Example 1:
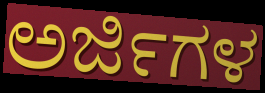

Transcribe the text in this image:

ಅರ್ಜಿಗಳ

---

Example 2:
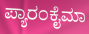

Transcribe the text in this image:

ಪ್ಯಾರಂಕೈಮಾ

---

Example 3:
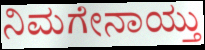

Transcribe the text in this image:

ನಿಮಗೇನಾಯ್ತು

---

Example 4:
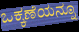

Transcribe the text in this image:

ಒಕ್ಕಣೆಯನ್ನೂ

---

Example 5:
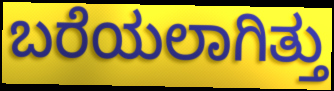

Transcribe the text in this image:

ಬರೆಯಲಾಗಿತ್ತು